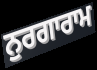
ਨੁਰਗਾਰਾਮ